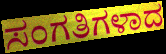
ಸಂಗತಿಗಳಾದ